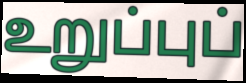
உறுப்புப்